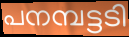
പനമ്പട്ടടി